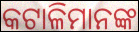
କଟାଳିମାନଙ୍କ